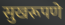
सुखरूपणे